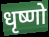
धृष्णो